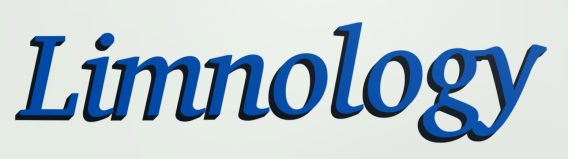
Limnology